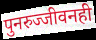
पुनरुज्जीवनही